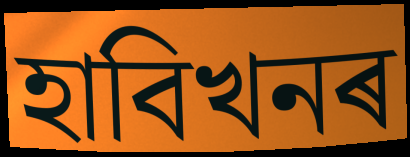
হাবিখনৰ